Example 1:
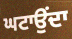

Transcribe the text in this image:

ਘਟਾਉਂਦਾ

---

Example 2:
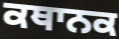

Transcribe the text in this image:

ਕਥਾਨਕ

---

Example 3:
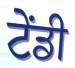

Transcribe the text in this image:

ਟੇਂਡੀ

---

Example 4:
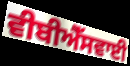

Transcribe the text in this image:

ਵੀਬੀਐੱਸਵਾਈ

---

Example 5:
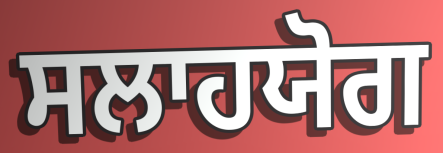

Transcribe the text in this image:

ਸਲਾਹਯੋਗ